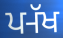
ਪ੍ਮੱਖ